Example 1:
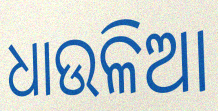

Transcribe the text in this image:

ଧାଉଳିଆ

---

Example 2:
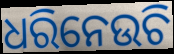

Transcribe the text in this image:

ଧରିନେଉଚି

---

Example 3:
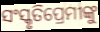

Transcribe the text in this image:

ସଂସ୍କୃତିପ୍ରେମୀଙ୍କୁ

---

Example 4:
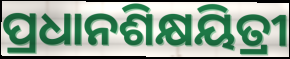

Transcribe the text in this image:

ପ୍ରଧାନଶିକ୍ଷୟିତ୍ରୀ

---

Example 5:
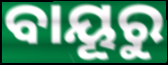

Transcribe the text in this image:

ବାୟୂରୁ